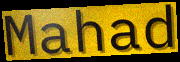
Mahad